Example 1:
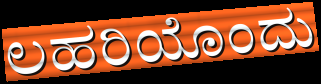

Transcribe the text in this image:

ಲಹರಿಯೊಂದು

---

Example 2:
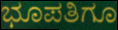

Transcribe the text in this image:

ಭೂಪತಿಗೂ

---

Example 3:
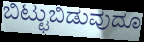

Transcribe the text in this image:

ಬಿಟ್ಟುಬಿಡುವುದೂ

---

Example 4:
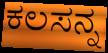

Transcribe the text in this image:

ಕಲಸನ್ನ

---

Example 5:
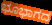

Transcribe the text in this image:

ಭೂಭಾಗದ